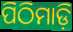
ପିଠିମାଡ଼ି